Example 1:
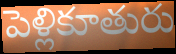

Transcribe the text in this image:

పెళ్లికూతురు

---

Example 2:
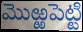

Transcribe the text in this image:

మొఱ్ఱపెట్టి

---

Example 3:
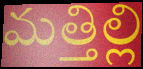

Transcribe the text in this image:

మత్తిల్లి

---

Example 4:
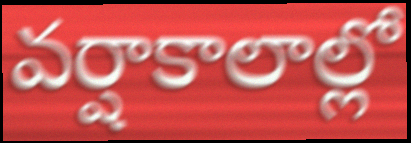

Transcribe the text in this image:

వర్షాకాలాల్లో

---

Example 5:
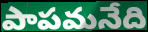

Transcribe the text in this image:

పాపమనేది